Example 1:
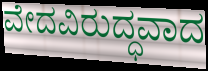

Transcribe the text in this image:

ವೇದವಿರುದ್ಧವಾದ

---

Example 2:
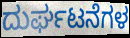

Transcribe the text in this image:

ದುರ್ಘಟನೆಗಳ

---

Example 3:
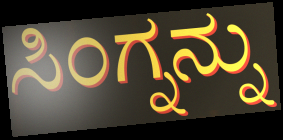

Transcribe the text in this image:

ಸಿಂಗ್ನನ್ನು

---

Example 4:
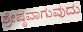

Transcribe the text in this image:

ಶ್ರೇಷ್ಠವಾಗುವುದು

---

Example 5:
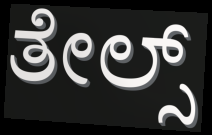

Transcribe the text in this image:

ತೇಲ್ಸ್